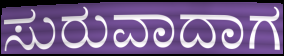
ಸುರುವಾದಾಗ